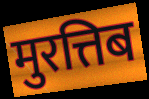
मुरत्तिब